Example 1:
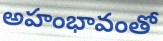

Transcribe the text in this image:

అహంభావంతో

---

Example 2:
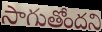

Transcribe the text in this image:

సాగుతోందని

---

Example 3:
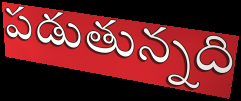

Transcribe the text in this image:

పడుతున్నది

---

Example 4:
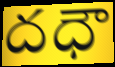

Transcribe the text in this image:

దధౌ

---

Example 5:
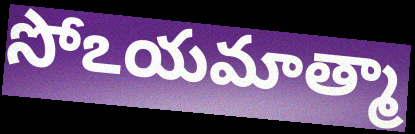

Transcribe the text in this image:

సోఽయమాత్మా